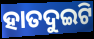
ହାତଦୁଇଟି